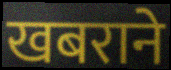
खबराने